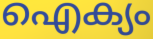
ഐക്യം